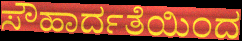
ಸೌಹಾರ್ದತೆಯಿಂದ